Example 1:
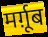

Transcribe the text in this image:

मर्ग़ूब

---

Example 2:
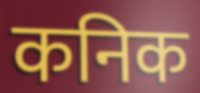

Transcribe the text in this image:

कनिक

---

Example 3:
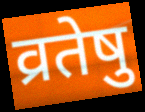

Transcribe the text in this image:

व्रतेषु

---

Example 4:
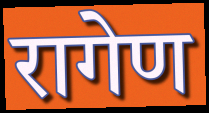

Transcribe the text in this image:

रागेण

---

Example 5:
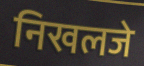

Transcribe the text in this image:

निखलजे